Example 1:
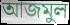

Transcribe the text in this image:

আজমুল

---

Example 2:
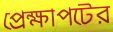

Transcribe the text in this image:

প্রেক্ষাপটের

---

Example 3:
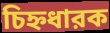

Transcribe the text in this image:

চিহ্নধারক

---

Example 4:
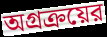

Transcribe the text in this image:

অগ্রক্রয়ের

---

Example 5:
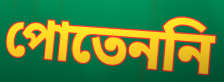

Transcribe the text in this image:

পোতেননি